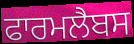
ਫਾਰਮਲੈਬਸ